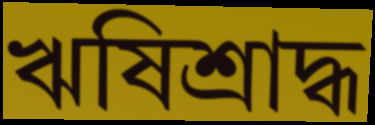
ঋষিশ্রাদ্ধ